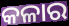
କଳାର